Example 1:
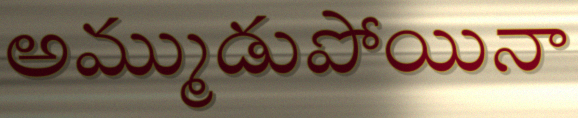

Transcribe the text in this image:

అమ్ముడుపోయినా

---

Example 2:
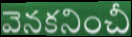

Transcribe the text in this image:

వెనకనించీ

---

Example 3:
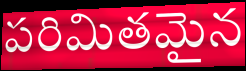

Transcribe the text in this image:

పరిమితమైన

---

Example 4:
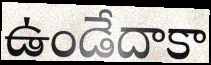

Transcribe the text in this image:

ఉండేదాకా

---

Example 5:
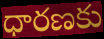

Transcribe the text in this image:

ధారణకు